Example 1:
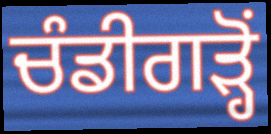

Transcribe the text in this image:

ਚੰਡੀਗੜ੍ਹੋਂ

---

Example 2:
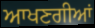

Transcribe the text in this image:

ਆਖਣਗੀਆਂ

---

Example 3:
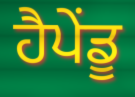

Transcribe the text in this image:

ਹੈਪੇਂਡੂ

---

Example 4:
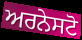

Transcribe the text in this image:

ਅਰਨੇਸਟੋ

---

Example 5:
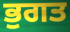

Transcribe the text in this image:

ਭੁਗਤ